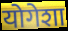
योगेशा